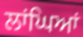
ਲਾਂਘਿਆਂ